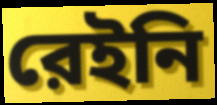
রেইনি